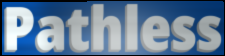
Pathless